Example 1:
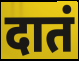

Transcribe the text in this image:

दातं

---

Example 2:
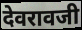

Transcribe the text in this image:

देवरावजी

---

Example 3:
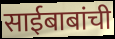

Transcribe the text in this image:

साईबाबांची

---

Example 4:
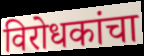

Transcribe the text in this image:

विरोधकांचा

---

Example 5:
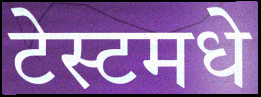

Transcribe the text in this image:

टेस्टमधे